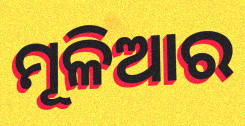
ମୂଳିଆର